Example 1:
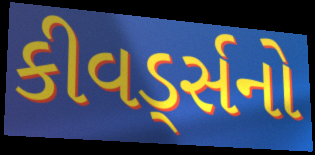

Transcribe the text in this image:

કીવર્ડ્સનો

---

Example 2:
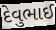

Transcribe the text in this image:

દેવુભાઈ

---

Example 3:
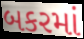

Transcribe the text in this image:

બકરમાં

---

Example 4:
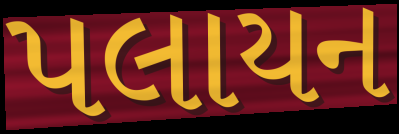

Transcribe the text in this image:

પલાયન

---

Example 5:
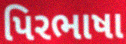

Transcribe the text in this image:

પિરભાષા